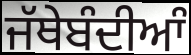
ਜੱਥੇਬੰਦੀਆੰ